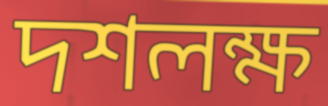
দশলক্ষ